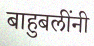
बाहुबलींनी